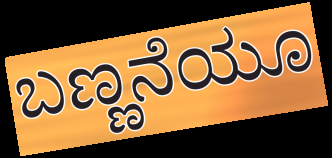
ಬಣ್ಣನೆಯೂ